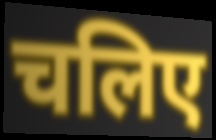
चलिए